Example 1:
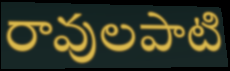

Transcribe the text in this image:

రావులపాటి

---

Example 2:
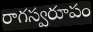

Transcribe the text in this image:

రాగస్వరూపం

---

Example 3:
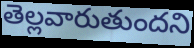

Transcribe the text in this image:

తెల్లవారుతుందని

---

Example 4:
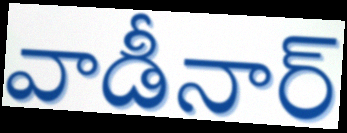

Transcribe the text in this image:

వాడీనార్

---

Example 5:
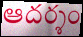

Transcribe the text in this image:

ఆదర్శం